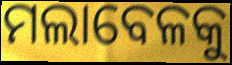
ମଲାବେଳକୁ